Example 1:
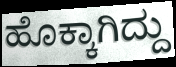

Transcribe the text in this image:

ಹೊಕ್ಕಾಗಿದ್ದು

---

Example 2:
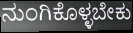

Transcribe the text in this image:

ನುಂಗಿಕೊಳ್ಳಬೇಕು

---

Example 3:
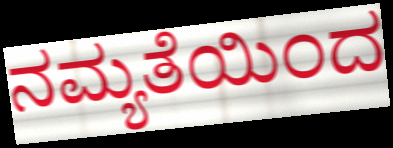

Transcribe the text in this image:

ನಮ್ಯತೆಯಿಂದ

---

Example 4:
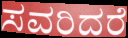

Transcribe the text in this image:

ಸವರಿದರೆ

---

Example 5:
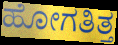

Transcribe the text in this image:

ಹೋಗತಿತ್ತ